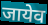
जायेव